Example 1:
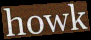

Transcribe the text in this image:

howk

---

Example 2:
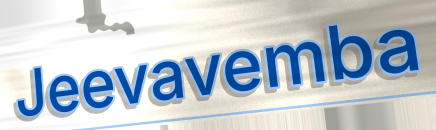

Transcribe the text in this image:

Jeevavemba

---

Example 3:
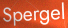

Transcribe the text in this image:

Spergel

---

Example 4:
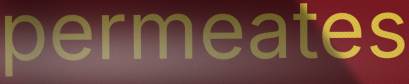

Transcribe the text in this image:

permeates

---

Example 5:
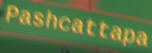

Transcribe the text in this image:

Pashcattapa